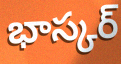
భాస్కర్